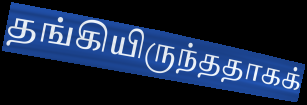
தங்கியிருந்ததாகக்